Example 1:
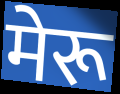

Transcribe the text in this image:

मेरू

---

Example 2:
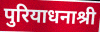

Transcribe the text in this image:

पुरियाधनाश्री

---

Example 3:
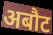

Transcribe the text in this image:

अबौट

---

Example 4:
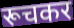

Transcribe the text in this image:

रूचकर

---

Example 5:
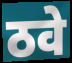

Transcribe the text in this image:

ठवे